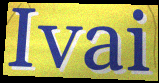
Ivai